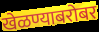
खेळण्याबरोबर